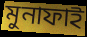
মুনাফাই